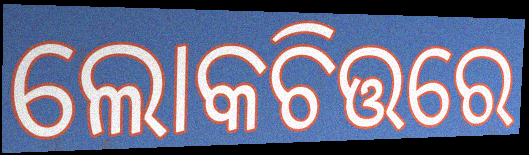
ଲୋକଚିତ୍ତରେ